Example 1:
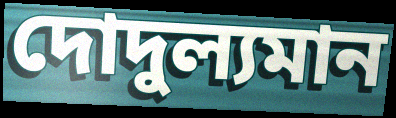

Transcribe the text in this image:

দোদুল্যমান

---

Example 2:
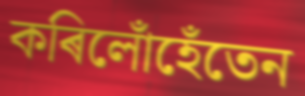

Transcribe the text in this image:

কৰিলোঁহেঁতেন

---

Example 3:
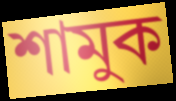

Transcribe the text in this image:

শামুক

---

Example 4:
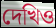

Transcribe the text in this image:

দেখিও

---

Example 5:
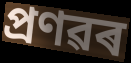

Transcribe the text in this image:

প্ৰণৱৰ